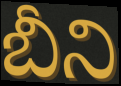
బీని